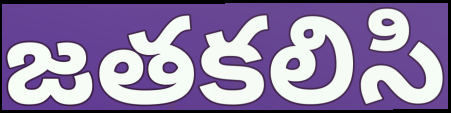
జతకలిసి